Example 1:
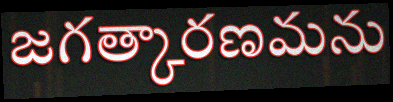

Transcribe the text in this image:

జగత్కారణమను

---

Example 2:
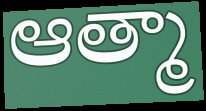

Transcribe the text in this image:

ఆత్మా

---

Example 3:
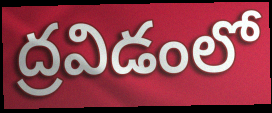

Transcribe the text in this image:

ద్రవిడంలో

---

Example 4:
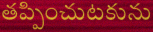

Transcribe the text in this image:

తప్పించుటకును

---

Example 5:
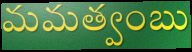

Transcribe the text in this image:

మమత్వంబు